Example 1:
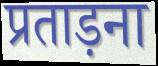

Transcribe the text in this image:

प्रताड़ना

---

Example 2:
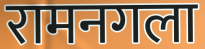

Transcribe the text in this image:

रामनगला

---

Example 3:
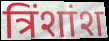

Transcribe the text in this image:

त्रिंशांश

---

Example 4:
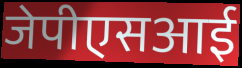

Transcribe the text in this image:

जेपीएसआई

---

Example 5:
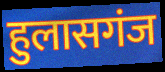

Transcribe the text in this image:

हुलासगंज